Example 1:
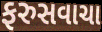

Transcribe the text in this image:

ફરુસવાચા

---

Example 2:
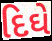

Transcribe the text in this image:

દિઘે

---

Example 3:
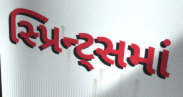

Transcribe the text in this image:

સ્પ્રિન્ટ્સમાં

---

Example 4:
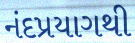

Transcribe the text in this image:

નંદપ્રયાગથી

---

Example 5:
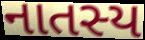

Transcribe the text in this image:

નાતસ્ય